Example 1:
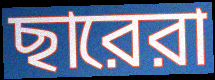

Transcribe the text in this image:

ছারেরা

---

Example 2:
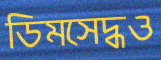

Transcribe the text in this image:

ডিমসেদ্ধও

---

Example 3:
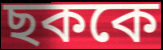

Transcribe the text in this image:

ছককে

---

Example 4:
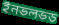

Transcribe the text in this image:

ইনভলভড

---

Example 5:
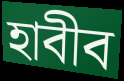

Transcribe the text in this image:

হাবীব